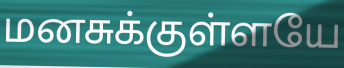
மனசுக்குள்ளயே